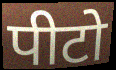
पीटो